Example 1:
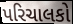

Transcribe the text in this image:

પરિચાલકો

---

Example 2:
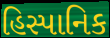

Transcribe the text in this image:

હિસ્પાનિક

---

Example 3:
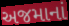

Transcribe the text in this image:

અજમાનાં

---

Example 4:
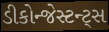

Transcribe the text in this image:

ડીકોન્જેસ્ટન્ટ્સ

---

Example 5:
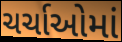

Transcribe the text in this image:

ચર્ચાઓમાં